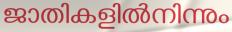
ജാതികളിൽനിന്നും